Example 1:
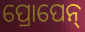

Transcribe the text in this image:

ପ୍ରୋପେନ୍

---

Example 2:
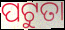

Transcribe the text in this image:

ପଟୁତା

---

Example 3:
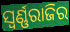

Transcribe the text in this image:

ସ୍ଵର୍ଣ୍ଣରାଜିର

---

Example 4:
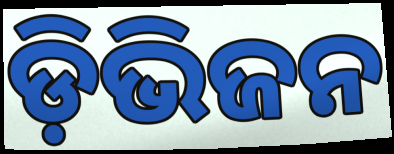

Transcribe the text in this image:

ଡ଼ିଭିଜନ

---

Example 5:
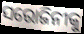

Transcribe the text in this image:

ସରୋଜିନୀକୁ